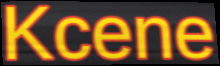
Kcene